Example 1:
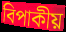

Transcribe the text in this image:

বিপাকীয়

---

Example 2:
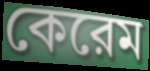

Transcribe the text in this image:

কেরেম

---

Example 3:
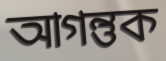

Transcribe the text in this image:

আগন্তুক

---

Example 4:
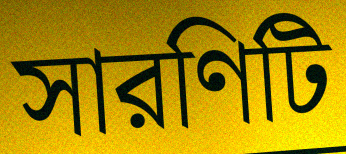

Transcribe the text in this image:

সারণিটি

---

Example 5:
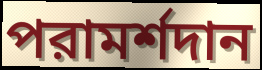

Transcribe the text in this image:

পরামর্শদান